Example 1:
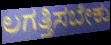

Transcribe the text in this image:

ಲಗತ್ತಿಸಬೇಕು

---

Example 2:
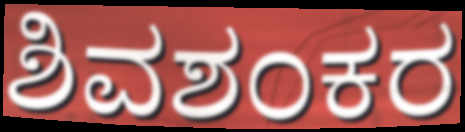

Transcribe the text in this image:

ಶಿವಶಂಕರ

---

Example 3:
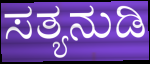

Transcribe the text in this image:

ಸತ್ಯನುಡಿ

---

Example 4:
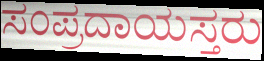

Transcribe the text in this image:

ಸಂಪ್ರದಾಯಸ್ತರು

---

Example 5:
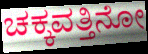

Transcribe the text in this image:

ಚಕ್ಕವತ್ತಿನೋ